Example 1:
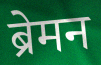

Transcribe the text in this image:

ब्रेमन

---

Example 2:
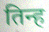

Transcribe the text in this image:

तिन्ह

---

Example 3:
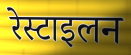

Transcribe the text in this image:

रेस्टाइलन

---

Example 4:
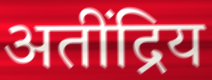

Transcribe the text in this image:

अतींद्रिय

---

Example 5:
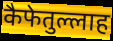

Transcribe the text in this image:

कैफेतुल्लाह